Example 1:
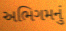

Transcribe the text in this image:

અભિગમનું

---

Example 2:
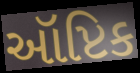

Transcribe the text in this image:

ઑપ્ટિક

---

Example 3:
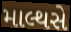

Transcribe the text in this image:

માલ્થસે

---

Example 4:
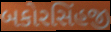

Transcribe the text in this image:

બકોરસિંહજી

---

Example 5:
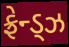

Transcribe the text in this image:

ફ્રેન્ડ્ઝ